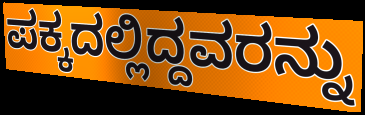
ಪಕ್ಕದಲ್ಲಿದ್ದವರನ್ನು